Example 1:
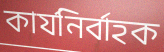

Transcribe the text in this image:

কাৰ্যনিৰ্বাহক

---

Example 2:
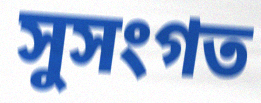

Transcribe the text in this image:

সুসংগত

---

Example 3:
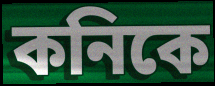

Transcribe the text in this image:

কনিকে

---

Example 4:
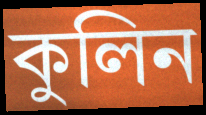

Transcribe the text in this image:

কুলিন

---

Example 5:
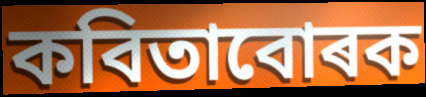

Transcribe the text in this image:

কবিতাবোৰক